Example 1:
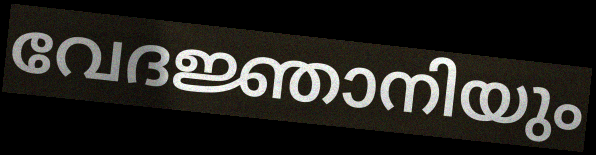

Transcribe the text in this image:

വേദജ്ഞാനിയും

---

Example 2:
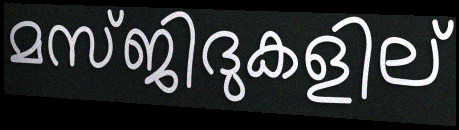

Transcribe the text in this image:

മസ്ജിദുകളില്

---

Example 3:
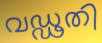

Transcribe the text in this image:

വഡ്ഢതി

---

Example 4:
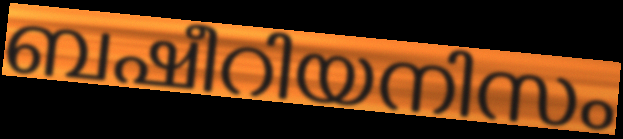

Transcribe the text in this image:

ബഷീറിയനിസം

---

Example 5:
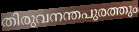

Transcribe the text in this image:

തിരുവനന്തപുരത്തും